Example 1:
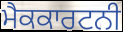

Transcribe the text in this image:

ਮੈਕਕਾਰਟਨੀ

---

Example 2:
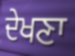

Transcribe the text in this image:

ਦੇਖਣਾ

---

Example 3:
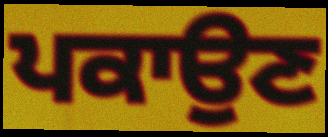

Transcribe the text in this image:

ਪਕਾਉਣ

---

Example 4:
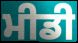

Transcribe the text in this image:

ਮੀਡੀ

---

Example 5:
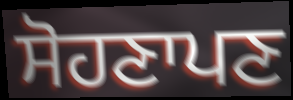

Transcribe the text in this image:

ਸੋਹਣਾਪਣ